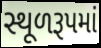
સ્થૂળરૂપમાં